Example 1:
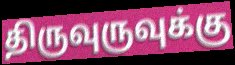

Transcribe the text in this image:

திருவுருவுக்கு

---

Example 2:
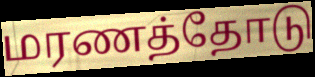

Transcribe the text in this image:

மரணத்தோடு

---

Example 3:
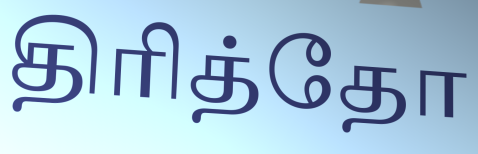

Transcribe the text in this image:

திரித்தோ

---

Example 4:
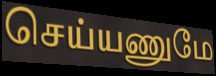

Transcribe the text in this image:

செய்யணுமே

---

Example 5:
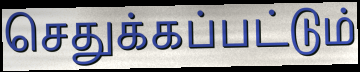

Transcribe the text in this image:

செதுக்கப்பட்டும்